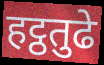
हट्ठतुढे